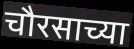
चौरसाच्या